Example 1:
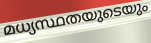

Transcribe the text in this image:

മധ്യസ്ഥതയുടെയും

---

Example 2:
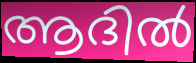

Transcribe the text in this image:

ആദിൽ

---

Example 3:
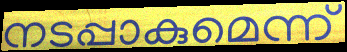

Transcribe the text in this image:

നടപ്പാകുമെന്ന്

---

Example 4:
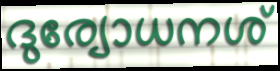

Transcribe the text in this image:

ദുര്യോധനശ്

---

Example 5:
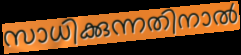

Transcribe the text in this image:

സാധിക്കുന്നതിനാൽ